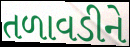
તળાવડીને